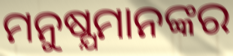
ମନୁଷ୍ଯମାନଙ୍କର